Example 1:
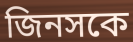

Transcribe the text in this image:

জিনসকে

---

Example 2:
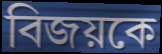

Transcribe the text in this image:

বিজয়কে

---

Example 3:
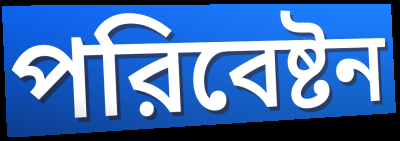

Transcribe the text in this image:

পরিবেষ্টন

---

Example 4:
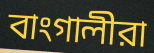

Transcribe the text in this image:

বাংগালীরা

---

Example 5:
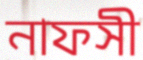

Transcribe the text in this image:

নাফসী